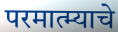
परमात्म्याचे